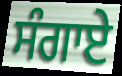
ਸੰਗਾਏ